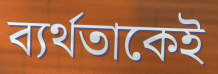
ব্যর্থতাকেই